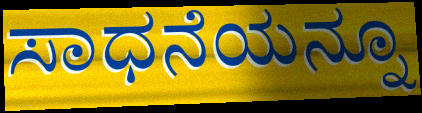
ಸಾಧನೆಯನ್ನೂ